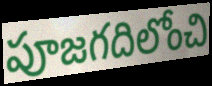
పూజగదిలోంచి